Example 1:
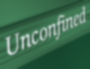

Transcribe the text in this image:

Unconfined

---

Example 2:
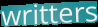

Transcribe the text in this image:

writters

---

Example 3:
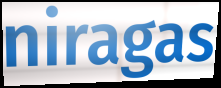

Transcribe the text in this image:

niragas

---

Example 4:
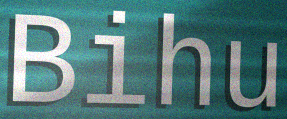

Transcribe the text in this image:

Bihu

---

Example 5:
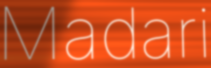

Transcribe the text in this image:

Madari